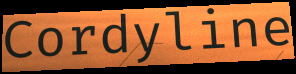
Cordyline